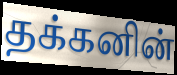
தக்கனின்